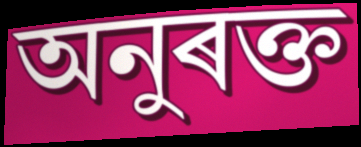
অনুৰক্ত